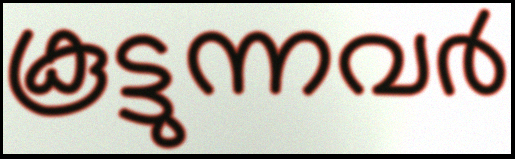
കൂട്ടുന്നവർ